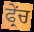
ਫ੍ਰੇਂਚ